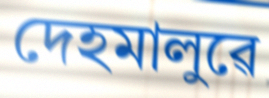
দেহমালুৱে